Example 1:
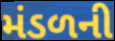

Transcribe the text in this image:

મંડળની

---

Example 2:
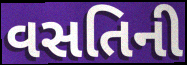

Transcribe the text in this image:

વસતિની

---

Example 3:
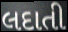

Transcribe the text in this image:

લદાતી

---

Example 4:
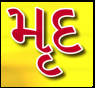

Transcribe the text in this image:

મૃદ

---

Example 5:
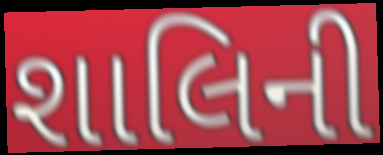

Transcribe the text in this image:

શાલિની